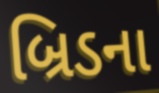
બ્રિડના